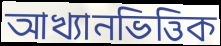
আখ্যানভিত্তিক